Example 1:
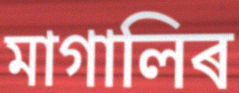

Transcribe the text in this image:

মাগালিৰ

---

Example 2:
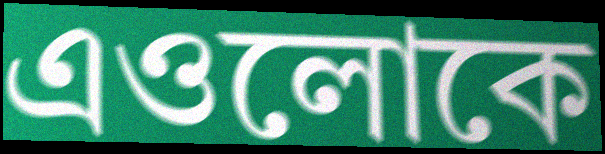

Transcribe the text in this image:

এওলোকে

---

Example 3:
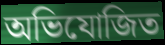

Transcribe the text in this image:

অভিযোজিত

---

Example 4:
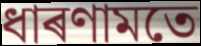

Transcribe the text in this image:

ধাৰণামতে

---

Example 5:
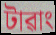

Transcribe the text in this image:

টাৱাং